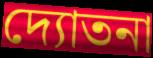
দ্যোতনা